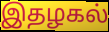
இதழகல்